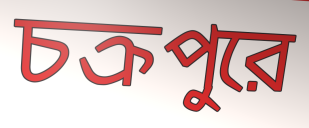
চক্রপুরে